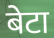
बेटा